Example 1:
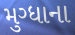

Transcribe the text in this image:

મુગ્ધાના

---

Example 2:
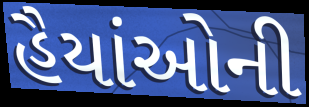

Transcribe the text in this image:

હૈયાંઓની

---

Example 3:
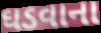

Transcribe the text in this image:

ઘડવાના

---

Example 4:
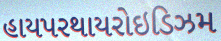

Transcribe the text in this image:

હાયપરથાયરોઇડિઝમ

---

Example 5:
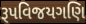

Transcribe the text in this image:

રૂપવિજયગણિ